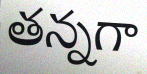
తన్నగా